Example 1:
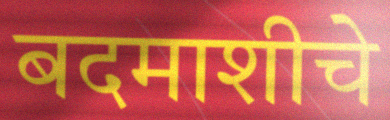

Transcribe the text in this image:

बदमाशीचे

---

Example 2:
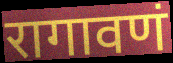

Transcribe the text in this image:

रागावणं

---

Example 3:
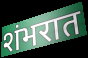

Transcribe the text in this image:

शंभरात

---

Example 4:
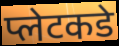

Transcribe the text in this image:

प्लेटकडे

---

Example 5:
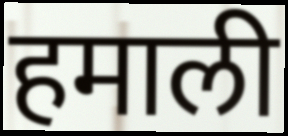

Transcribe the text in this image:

हमाली